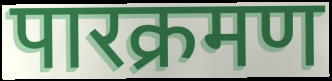
पारक्रमण